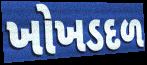
ખોખડદળ